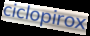
ciclopirox